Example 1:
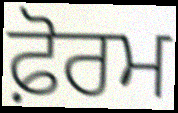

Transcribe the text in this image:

ਫ਼ੋਰਮ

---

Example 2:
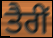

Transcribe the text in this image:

ਤੈਰੀਂ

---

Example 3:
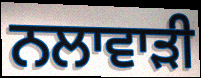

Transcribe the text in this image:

ਨਲਾਵਾੜੀ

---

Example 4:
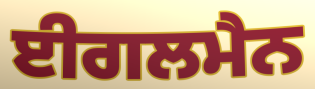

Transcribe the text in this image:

ਈਗਲਮੈਨ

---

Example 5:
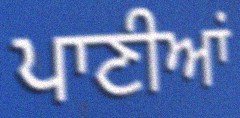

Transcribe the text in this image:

ਪਾਣੀਆਂ